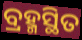
ବ୍ରହ୍ମସ୍ଥିତ